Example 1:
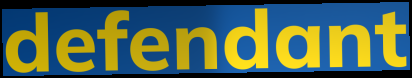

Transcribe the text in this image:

defendant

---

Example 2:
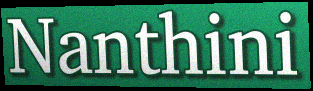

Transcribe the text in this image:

Nanthini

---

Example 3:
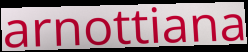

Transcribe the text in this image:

arnottiana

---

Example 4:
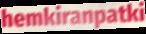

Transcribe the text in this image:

hemkiranpatki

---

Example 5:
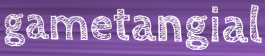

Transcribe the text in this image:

gametangial